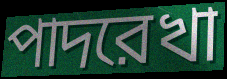
পাদরেখা